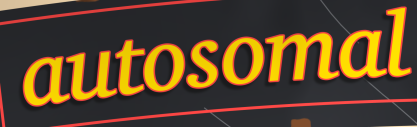
autosomal